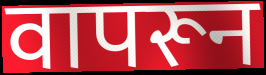
वापरून